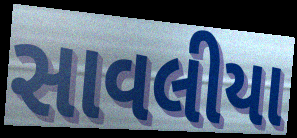
સાવલીયા